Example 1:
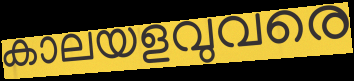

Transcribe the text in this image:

കാലയളവുവരെ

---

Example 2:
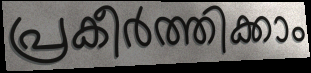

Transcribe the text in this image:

പ്രകീർത്തിക്കാം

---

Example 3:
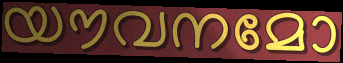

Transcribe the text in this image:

യൗവനമോ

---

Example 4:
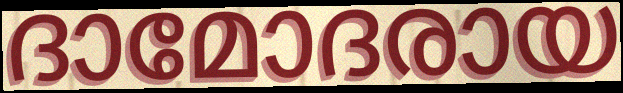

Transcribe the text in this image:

ദാമോദരായ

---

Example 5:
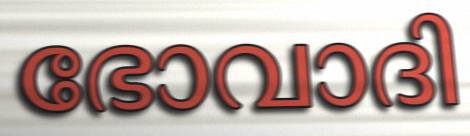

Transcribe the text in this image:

ഭോവാദി